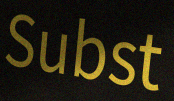
Subst